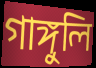
গাঙ্গুলি